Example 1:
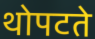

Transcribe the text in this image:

थोपटते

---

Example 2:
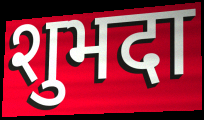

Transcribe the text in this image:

शुभदा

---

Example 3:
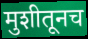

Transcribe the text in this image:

मुशीतूनच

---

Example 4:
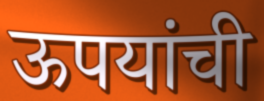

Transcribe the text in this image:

ऊपयांची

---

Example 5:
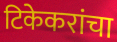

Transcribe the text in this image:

टिकेकरांचा